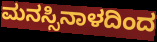
ಮನಸ್ಸಿನಾಳದಿಂದ